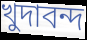
খুদাবন্দ